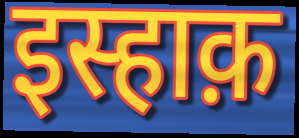
इस्हाक़